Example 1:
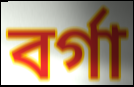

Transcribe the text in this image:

বর্গা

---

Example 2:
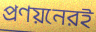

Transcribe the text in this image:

প্রণয়নেরই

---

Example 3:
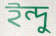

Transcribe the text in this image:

ইন্দু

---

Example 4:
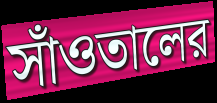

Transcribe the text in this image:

সাঁওতালের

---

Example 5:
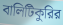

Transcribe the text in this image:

বালিটিকুরির